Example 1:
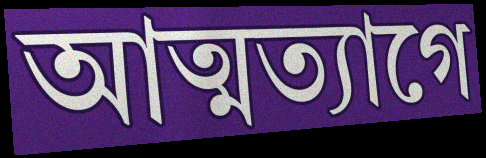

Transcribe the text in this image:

আত্মত্যাগে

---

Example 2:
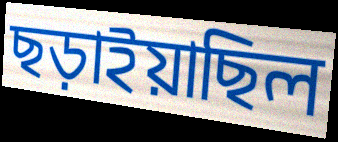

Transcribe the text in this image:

ছড়াইয়াছিল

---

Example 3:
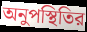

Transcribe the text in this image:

অনুপস্থিতির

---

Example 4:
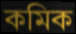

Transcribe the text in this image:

কমিক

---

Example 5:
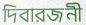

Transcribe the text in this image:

দিবারজনী